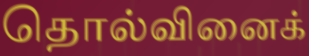
தொல்வினைக்